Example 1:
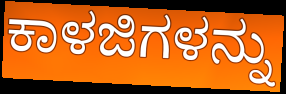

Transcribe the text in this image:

ಕಾಳಜಿಗಳನ್ನು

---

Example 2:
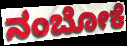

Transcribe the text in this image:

ನಂಬೋಕೆ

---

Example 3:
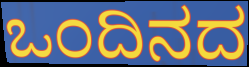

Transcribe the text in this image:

ಒಂದಿನದ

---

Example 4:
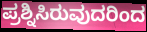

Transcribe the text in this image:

ಪ್ರಶ್ನಿಸಿರುವುದರಿಂದ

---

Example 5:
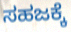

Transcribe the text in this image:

ಸಹಜಕ್ಕೆ